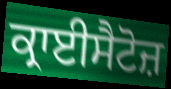
ਕ੍ਰਾਈਸੈਟੋਜ਼